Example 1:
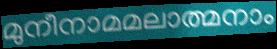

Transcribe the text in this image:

മുനീനാമമലാത്മനാം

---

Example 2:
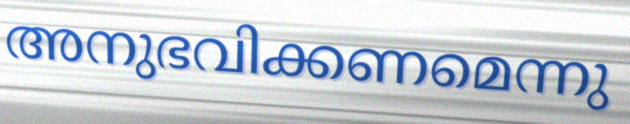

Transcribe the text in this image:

അനുഭവിക്കണമെന്നു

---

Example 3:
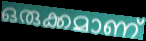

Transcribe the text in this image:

ഒരുക്കമാണ്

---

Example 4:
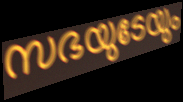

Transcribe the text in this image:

സഭയുടേയും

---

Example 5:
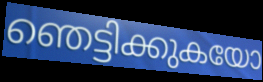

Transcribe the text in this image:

ഞെട്ടിക്കുകയോ